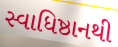
સ્વાધિષ્ઠાનથી